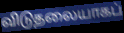
விடுதலையாகப்